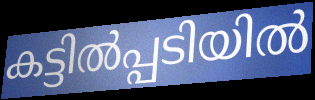
കട്ടിൽപ്പടിയിൽ